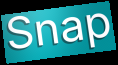
Snap